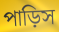
পাড়িস